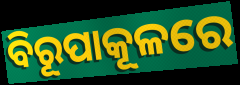
ବିରୂପାକୂଳରେ